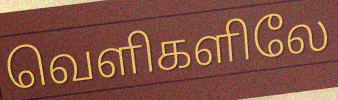
வெளிகளிலே